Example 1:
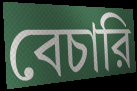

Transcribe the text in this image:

বেচারি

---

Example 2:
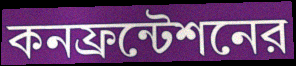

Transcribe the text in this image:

কনফ্রন্টেশনের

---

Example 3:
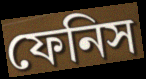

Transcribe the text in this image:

ফেনিস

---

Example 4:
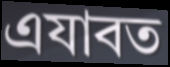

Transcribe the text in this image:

এযাবত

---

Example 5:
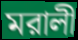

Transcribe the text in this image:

মরালী